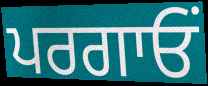
ਪਰਗਾਓਂ